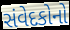
સંવેદકોનો